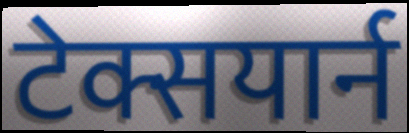
टेक्सयार्न